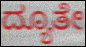
ದ್ಯೂತೇ